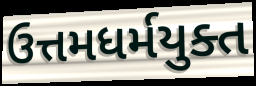
ઉત્તમધર્મયુક્ત